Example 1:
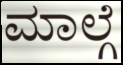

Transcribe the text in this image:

ಮಾಲ್ಗೆ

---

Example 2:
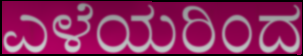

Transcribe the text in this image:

ಎಳೆಯರಿಂದ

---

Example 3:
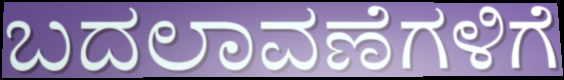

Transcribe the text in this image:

ಬದಲಾವಣೆಗಳಿಗೆ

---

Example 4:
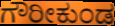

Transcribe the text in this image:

ಗೌರೀಕುಂಡ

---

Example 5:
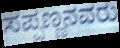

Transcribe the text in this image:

ಸಪ್ಪಣ್ಣನವರು